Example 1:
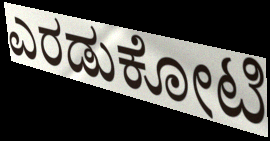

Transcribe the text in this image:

ಎರಡುಕೋಟಿ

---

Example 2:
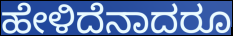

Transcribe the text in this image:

ಹೇಳಿದೆನಾದರೂ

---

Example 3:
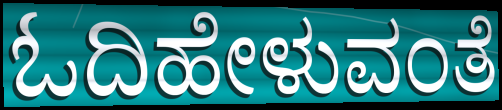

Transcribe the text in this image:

ಓದಿಹೇಳುವಂತೆ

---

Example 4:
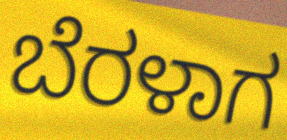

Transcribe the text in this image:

ಬೆರಳಾಗ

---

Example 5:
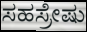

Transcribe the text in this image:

ಸಹಸ್ರೇಷು